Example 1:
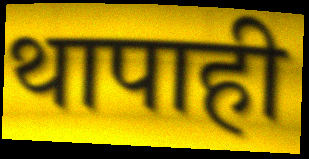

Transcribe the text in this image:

थापाही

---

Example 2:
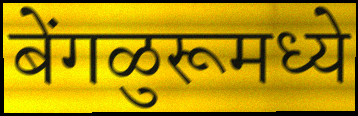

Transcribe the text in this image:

बेंगळुरूमध्ये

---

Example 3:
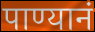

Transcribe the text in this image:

पाण्यानं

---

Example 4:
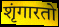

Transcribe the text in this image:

शृंगारतो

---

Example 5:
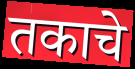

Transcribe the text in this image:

तकाचे